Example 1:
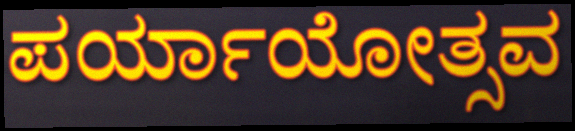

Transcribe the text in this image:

ಪರ್ಯಾಯೋತ್ಸವ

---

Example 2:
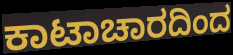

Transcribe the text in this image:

ಕಾಟಾಚಾರದಿಂದ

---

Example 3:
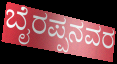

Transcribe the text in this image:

ಬೈರಪ್ಪನವರ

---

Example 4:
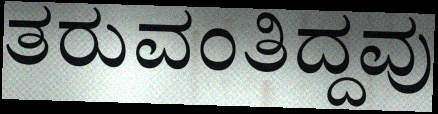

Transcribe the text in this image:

ತರುವಂತಿದ್ದವು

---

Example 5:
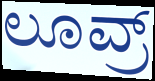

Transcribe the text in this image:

ಲೂವ್ರ್